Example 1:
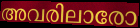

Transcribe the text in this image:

അവരിലാരോ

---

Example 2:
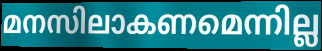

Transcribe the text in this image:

മനസിലാകണമെന്നില്ല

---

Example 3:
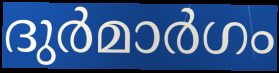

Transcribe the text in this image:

ദുർമാർഗം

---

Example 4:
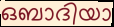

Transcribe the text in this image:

ഒബാദിയാ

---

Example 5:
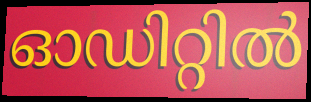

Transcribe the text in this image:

ഓഡിറ്റിൽ